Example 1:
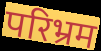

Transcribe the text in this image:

परिभ्रम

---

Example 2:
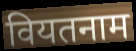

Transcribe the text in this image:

वियतनाम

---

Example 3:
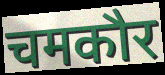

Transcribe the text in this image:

चमकौर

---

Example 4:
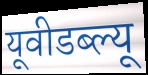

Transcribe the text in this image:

यूवीडब्ल्यू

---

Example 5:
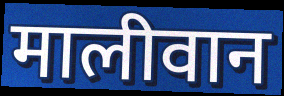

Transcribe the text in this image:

मालीवान